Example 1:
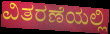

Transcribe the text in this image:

ವಿತರಣೆಯಲ್ಲಿ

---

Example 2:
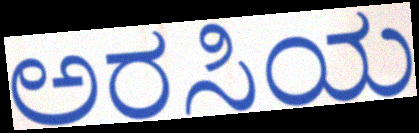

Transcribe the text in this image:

ಅರಸಿಯ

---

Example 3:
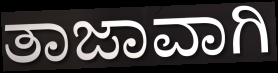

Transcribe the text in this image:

ತಾಜಾವಾಗಿ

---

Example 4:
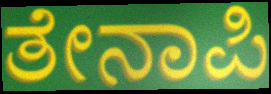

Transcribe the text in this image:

ತೇನಾಪಿ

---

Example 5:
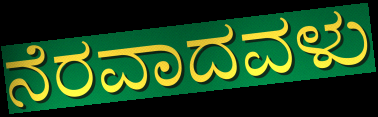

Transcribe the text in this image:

ನೆರವಾದವಳು